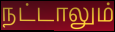
நட்டாலும்